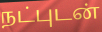
நட்புடன்